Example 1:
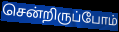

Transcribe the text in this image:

சென்றிருப்போம்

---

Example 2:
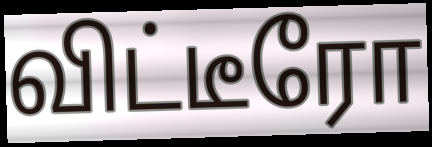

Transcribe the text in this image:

விட்டீரோ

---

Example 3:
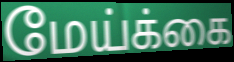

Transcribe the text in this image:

மேய்க்கை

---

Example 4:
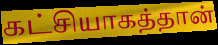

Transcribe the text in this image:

கட்சியாகத்தான்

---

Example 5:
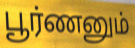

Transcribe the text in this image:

பூர்ணனும்